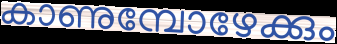
കാണുമ്പോഴേക്കും